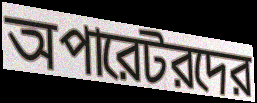
অপারেটরদের